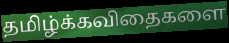
தமிழ்க்கவிதைகளை